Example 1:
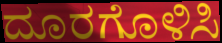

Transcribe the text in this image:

ದೂರಗೊಳಿಸಿ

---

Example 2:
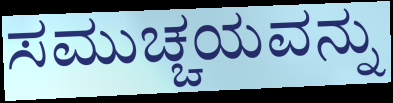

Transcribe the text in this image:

ಸಮುಚ್ಚಯವನ್ನು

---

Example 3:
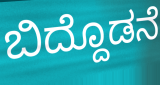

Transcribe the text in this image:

ಬಿದ್ದೊಡನೆ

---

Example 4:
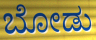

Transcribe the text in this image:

ಬೋಡು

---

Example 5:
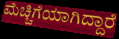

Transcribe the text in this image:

ಮೆಚ್ಚಿಗೆಯಾಗಿದ್ದಾರೆ